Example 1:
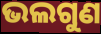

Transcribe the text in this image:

ଭଲଗୁଣ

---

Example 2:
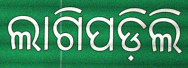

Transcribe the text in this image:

ଲାଗିପଡ଼ିଲି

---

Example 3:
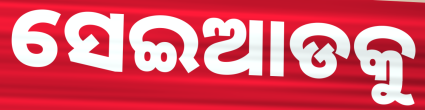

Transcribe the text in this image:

ସେଇଆଡକୁ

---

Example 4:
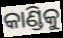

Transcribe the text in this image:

କାଣ୍ଡିକୁ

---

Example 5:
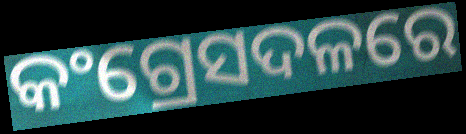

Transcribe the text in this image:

କଂଗ୍ରେସଦଳରେ